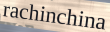
rachinchina